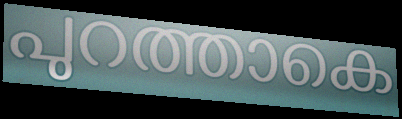
പുറത്താകെ